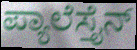
ಪ್ಯಾಲೆಸ್ತೈನ್